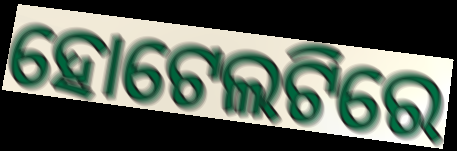
ହୋଟେଲଟିରେ